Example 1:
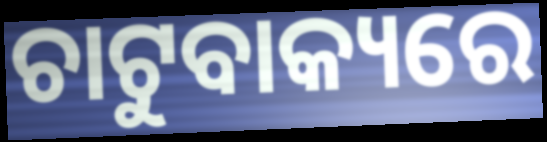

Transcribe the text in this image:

ଚାଟୁବାକ୍ୟରେ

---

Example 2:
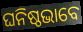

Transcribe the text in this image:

ଘନିଷ୍ଠଭାବେ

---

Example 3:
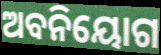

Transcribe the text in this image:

ଅବନିୟୋଗ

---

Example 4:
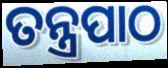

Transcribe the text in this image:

ତନ୍ତ୍ରପାଠ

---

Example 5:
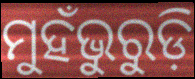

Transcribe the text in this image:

ମୁହଁଭୁରୁଡ଼ି